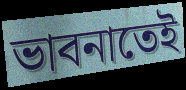
ভাবনাতেই